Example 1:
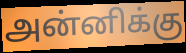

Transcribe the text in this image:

அன்னிக்கு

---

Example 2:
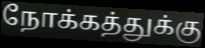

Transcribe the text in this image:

நோக்கத்துக்கு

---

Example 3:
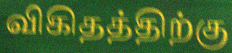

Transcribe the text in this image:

விகிதத்திற்கு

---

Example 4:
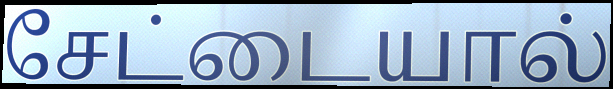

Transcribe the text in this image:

சேட்டையால்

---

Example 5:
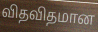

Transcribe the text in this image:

விதவிதமான